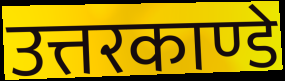
उत्तरकाण्डे